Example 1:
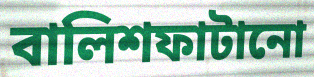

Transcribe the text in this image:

বালিশফাটানো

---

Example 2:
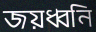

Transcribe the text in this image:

জয়ধ্বনি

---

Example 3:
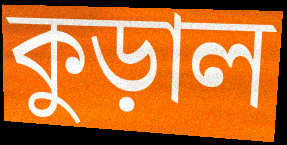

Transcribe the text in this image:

কুড়াল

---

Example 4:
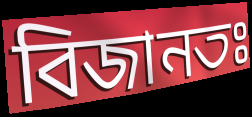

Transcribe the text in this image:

বিজানতঃ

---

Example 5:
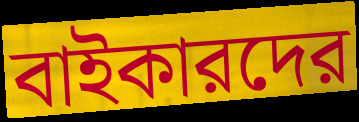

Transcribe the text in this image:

বাইকারদের